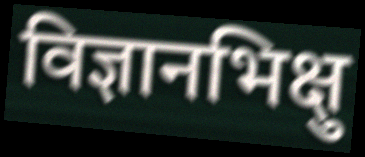
विज्ञानभिक्षु